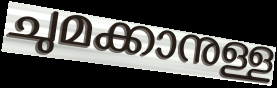
ചുമക്കാനുള്ള